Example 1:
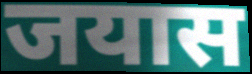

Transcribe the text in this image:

जयास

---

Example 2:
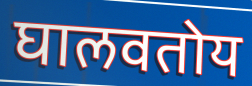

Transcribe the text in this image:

घालवतोय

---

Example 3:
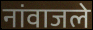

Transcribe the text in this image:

नांवाजले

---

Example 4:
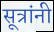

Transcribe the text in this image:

सूत्रांनी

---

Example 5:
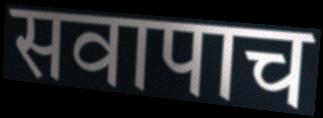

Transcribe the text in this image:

सवापाच